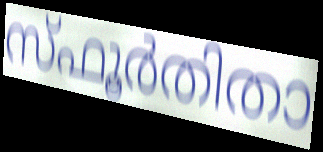
സ്ഫൂർതിതാ